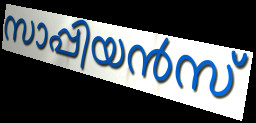
സാപ്പിയൻസ്